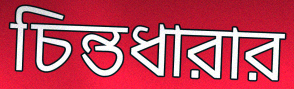
চিন্তধারার